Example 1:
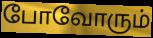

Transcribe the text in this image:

போவோரும்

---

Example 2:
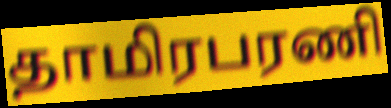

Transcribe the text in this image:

தாமிரபரணி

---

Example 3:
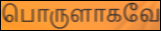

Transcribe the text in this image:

பொருளாகவே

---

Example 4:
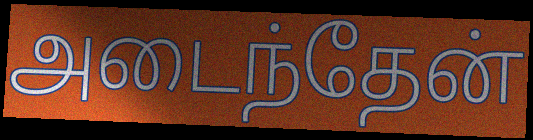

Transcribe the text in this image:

அடைந்தேன்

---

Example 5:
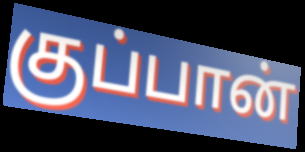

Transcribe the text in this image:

குப்பான்